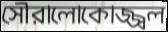
সৌরালোকোজ্জ্বল